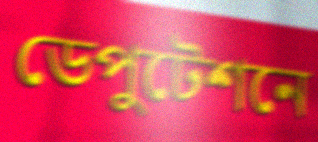
ডেপুটেশনে